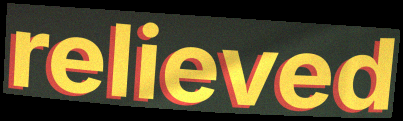
relieved